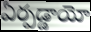
ఏర్పడ్డాయో